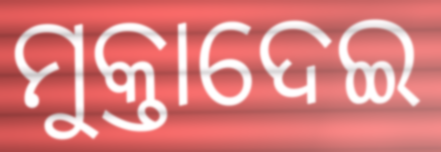
ମୁକ୍ତାଦେଇ